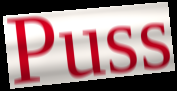
Puss